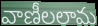
వాణీలలామ